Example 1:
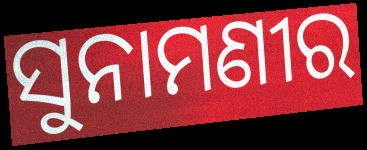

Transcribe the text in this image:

ସୁନାମଣୀର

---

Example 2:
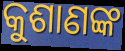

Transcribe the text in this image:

କୁଶାଣଙ୍କ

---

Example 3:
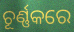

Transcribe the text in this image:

ଚୂର୍ଣ୍ଣକରେ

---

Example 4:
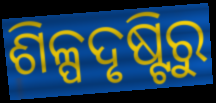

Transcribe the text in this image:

ଶିଳ୍ପଦୃଷ୍ଟିରୁ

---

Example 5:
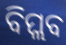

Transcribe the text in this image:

ବିପ୍ଲବ